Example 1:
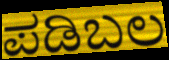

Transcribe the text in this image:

ಪಡಿಬಲ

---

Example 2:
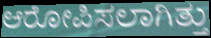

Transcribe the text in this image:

ಆರೋಪಿಸಲಾಗಿತ್ತು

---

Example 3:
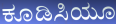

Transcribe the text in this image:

ಕೂಡಿಸಿಯೂ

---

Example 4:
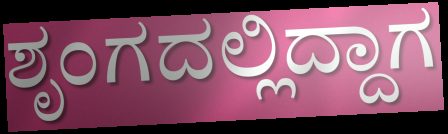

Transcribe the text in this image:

ಶೃಂಗದಲ್ಲಿದ್ದಾಗ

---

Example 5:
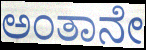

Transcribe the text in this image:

ಅಂತಾನೇ